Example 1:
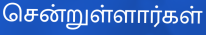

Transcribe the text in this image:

சென்றுள்ளார்கள்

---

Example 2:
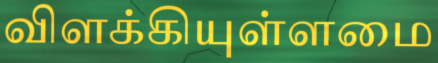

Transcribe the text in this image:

விளக்கியுள்ளமை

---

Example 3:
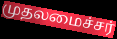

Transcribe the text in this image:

முதலமைச்சர்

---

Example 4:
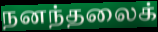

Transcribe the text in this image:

நனந்தலைக்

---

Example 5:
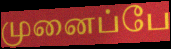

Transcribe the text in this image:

முனைப்பே